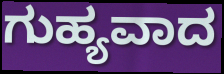
ಗುಹ್ಯವಾದ